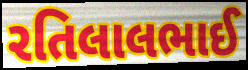
રતિલાલભાઈ